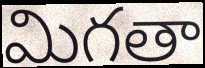
మిగతా